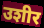
उशीर